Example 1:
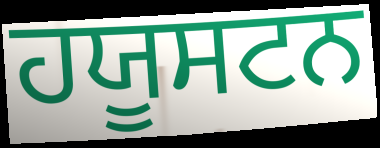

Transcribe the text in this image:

ਹਯੂਸਟਨ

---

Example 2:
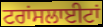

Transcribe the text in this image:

ਟਰਾਂਸਲਾਈਟਾਂ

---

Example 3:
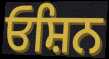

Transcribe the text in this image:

ਓਸ਼ਿਨ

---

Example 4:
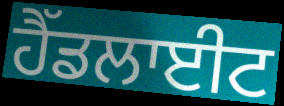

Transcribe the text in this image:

ਹੈੱਡਲਾਈਟ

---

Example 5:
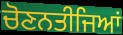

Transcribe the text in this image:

ਚੋਣਨਤੀਜਿਆਂ